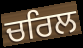
ਚਰਿਲ